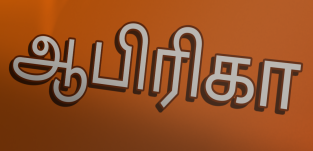
ஆபிரிகா